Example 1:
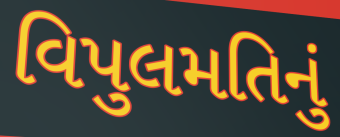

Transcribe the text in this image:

વિપુલમતિનું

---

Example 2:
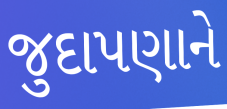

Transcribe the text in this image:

જુદાપણાને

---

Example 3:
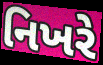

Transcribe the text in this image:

નિખરે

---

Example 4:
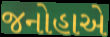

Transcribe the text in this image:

જનોહાએ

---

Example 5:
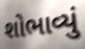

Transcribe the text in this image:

શોભાવ્યું